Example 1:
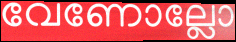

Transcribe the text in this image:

വേണോല്ലോ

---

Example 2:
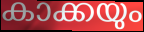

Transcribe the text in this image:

കാക്കയും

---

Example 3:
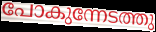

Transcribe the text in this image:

പോകുന്നേടത്തു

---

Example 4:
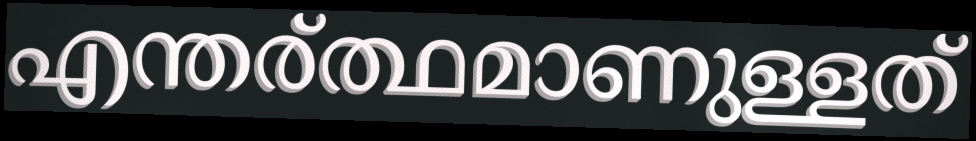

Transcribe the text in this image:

എന്തര്ത്ഥമാണുള്ളത്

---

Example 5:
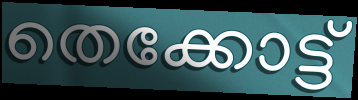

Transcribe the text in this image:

തെക്കോട്ട്